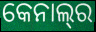
କେନାଲ୍‍ର